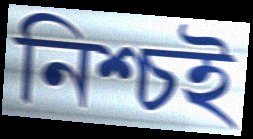
নিশ্চই